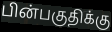
பின்பகுதிக்கு